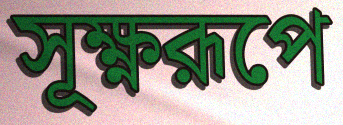
সূক্ষ্ণরূপে